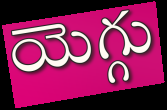
యెగ్గు